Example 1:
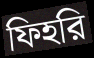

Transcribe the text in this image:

ফিহরি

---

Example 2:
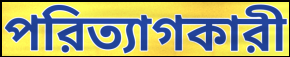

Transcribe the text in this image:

পরিত্যাগকারী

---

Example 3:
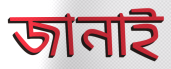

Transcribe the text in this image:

জানাই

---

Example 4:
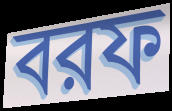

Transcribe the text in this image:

বরফ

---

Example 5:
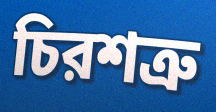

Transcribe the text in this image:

চিরশত্রু